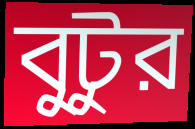
বুটুর